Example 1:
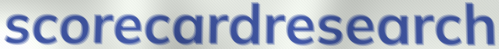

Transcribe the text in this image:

scorecardresearch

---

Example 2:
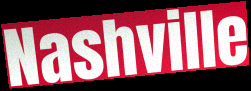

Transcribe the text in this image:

Nashville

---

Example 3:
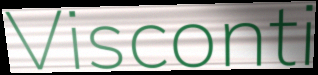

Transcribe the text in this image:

Visconti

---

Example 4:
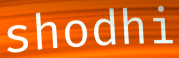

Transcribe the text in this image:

shodhi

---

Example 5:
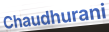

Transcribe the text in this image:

Chaudhurani